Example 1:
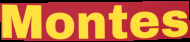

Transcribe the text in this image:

Montes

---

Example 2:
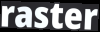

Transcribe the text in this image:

raster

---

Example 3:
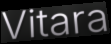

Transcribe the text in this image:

Vitara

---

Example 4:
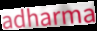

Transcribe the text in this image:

adharma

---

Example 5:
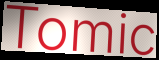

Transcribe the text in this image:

Tomic